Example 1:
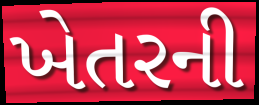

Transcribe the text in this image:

ખેતરની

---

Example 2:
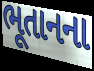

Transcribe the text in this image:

ભૂતાનના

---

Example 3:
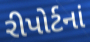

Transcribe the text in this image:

રીપોર્ટનાં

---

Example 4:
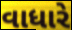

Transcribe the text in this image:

વાધારે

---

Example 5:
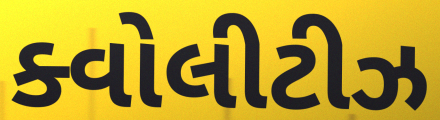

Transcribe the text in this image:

ક્વોલીટીઝ